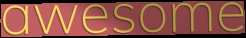
awesome